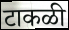
टाकळी